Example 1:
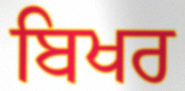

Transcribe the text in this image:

ਬਿਖਰ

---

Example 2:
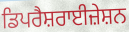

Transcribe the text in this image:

ਡਿਪਰੈਸ਼ਰਾਈਜ਼ੇਸ਼ਨ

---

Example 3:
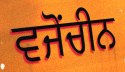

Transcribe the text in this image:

ਵਜੋਂਚੀਨ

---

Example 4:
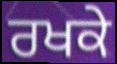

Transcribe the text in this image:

ਰਖਕੇ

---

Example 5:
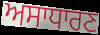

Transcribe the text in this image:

ਅਸਾਧਾਰਣ